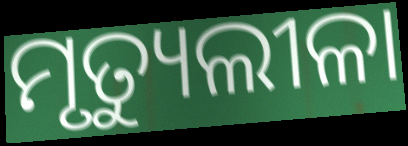
ମୃତ୍ୟୁଲୀଳା